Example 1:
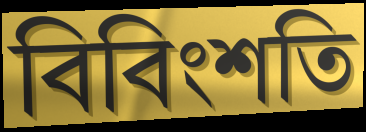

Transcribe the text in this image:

বিবিংশতি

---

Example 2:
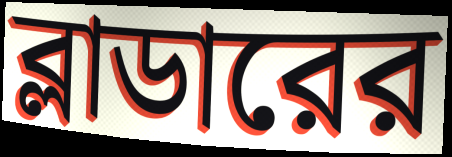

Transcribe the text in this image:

ব্লাডারের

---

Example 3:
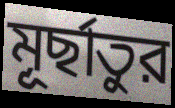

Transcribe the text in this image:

মূর্ছাতুর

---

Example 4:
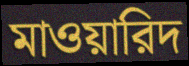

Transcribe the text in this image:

মাওয়ারিদ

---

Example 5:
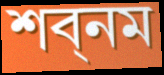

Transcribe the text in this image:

শব্নম